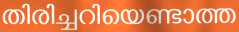
തിരിച്ചറിയെണ്ടാത്ത